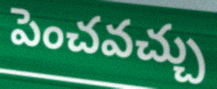
పెంచవచ్చు